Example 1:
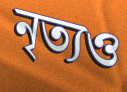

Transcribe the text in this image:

নৃত্যও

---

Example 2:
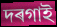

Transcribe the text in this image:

দৰগাই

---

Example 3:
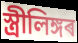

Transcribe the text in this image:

স্ত্ৰীলিঙ্গৰ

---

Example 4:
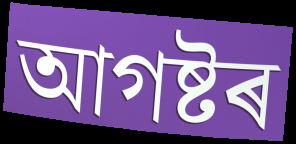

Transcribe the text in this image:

আগষ্টৰ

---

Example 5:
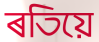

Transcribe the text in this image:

ৰতিয়ে